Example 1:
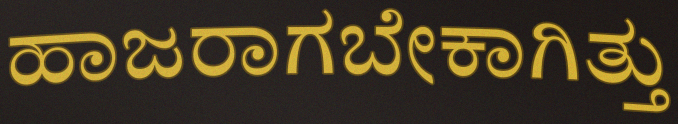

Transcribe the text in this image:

ಹಾಜರಾಗಬೇಕಾಗಿತ್ತು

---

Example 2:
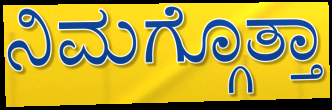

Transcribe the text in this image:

ನಿಮಗ್ಗೊತ್ತಾ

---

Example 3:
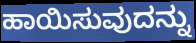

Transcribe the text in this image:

ಹಾಯಿಸುವುದನ್ನು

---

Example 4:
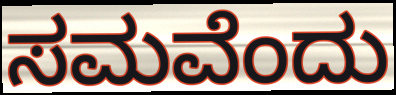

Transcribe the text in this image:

ಸಮವೆಂದು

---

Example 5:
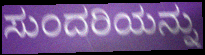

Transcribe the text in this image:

ಸುಂದರಿಯನ್ನು